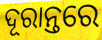
ଦୂରାନ୍ତରେ